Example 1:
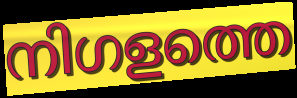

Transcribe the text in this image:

നിഗളത്തെ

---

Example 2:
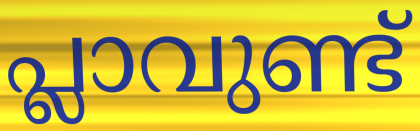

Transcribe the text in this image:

പ്ലാവുണ്ട്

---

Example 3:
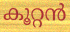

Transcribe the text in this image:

കൂറ്റൻ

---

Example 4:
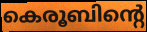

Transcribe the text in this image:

കെരൂബിന്റെ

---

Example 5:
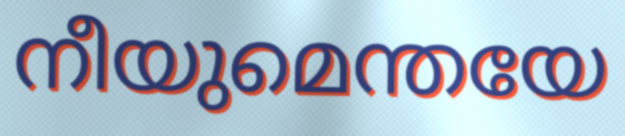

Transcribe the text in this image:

നീയുമെന്തയേ